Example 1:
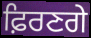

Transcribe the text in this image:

ਫ਼ਿਰਣਗੇ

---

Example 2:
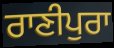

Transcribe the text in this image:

ਰਾਣੀਪੁਰਾ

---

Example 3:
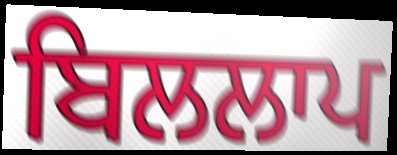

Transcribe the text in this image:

ਬਿਲਲਾਪ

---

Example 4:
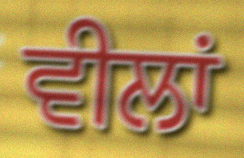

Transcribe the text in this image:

ਵੀਲਾਂ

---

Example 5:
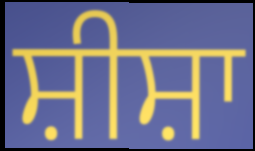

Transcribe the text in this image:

ਸ਼ੀਸ਼ਾ